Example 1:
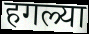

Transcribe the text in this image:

हगल्या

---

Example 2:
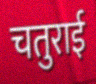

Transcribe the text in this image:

चतुराई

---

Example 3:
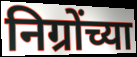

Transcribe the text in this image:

निग्रोंच्या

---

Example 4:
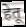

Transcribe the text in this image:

हेतू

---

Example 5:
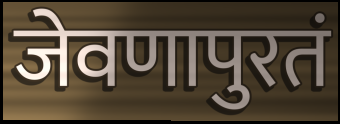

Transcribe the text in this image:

जेवणापुरतं